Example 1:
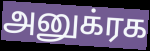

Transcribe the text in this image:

அனுக்ரக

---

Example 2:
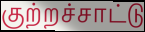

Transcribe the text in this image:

குற்றச்சாட்டு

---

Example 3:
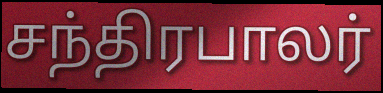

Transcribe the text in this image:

சந்திரபாலர்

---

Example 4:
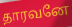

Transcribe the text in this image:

தாரவனே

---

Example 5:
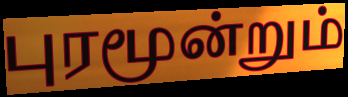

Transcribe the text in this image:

புரமூன்றும்